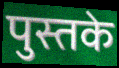
पुस्‍तके